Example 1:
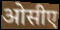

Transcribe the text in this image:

ओसीए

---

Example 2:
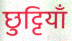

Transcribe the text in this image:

छुट्टियाँ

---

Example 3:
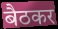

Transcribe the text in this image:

बैठकर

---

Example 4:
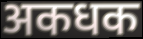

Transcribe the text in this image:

अकधक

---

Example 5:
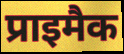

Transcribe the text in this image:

प्राइमैक